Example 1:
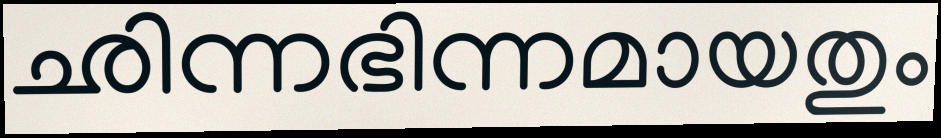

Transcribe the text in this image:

ഛിന്നഭിന്നമായതും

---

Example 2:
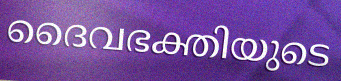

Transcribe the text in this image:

ദൈവഭക്തിയുടെ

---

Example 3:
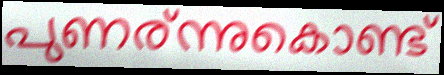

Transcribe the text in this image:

പുണര്ന്നുകൊണ്ട്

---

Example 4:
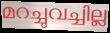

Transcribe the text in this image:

മറച്ചുവച്ചില്ല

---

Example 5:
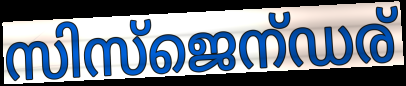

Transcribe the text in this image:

സിസ്ജെന്ഡര്